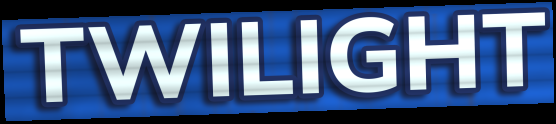
TWILIGHT